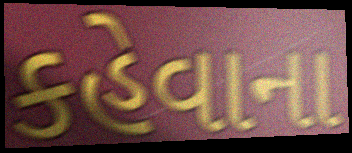
કહેવાના